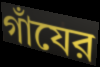
গাঁযের